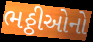
ભઠ્ઠીઓનો